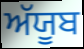
ਅੱਯੂਬ